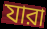
যারা